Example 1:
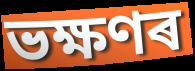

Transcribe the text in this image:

ভক্ষণৰ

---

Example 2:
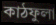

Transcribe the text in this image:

কাঠফুলা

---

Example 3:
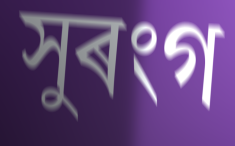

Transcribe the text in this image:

সুৰংগ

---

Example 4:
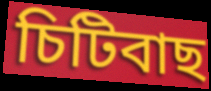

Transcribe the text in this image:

চিটিবাছ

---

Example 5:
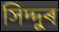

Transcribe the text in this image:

সিদ্দুৰ